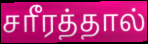
சரீரத்தால்